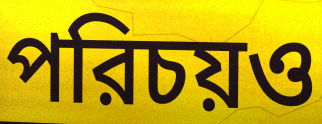
পরিচয়ও